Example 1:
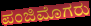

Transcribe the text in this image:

ಪಂಜಿಮೊಗರು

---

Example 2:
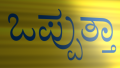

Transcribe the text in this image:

ಒಪ್ಪುತ್ತಾ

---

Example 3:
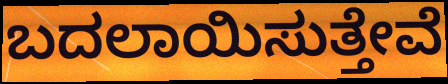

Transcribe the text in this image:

ಬದಲಾಯಿಸುತ್ತೇವೆ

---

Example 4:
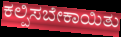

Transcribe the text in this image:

ಕಲ್ಪಿಸಬೇಕಾಯಿತು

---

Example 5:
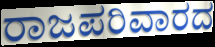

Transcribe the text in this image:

ರಾಜಪರಿವಾರದ